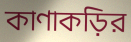
কাণাকড়ির